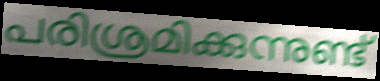
പരിശ്രമിക്കുന്നുണ്ട്